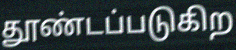
தூண்டப்படுகிற